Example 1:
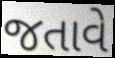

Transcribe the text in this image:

જતાવે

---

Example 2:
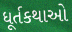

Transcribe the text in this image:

ધૂર્તકથાઓ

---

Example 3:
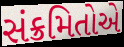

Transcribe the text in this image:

સંક્રમિતોએ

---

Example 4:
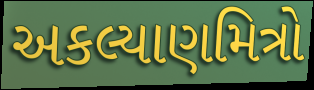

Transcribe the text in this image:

અકલ્યાણમિત્રો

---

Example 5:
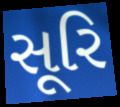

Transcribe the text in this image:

સૂરિ